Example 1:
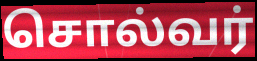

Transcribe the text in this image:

சொல்வர்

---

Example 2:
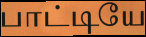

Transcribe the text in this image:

பாட்டியே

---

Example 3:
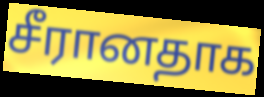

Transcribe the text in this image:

சீரானதாக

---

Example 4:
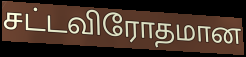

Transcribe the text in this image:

சட்டவிரோதமான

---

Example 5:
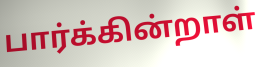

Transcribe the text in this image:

பார்க்கின்றாள்